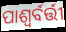
ପାଶ୍ୱର୍ବର୍ତ୍ତୀ